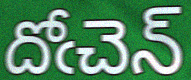
దోఁచెన్